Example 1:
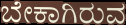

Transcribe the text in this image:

ಬೇಕಾಗಿರುವ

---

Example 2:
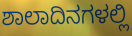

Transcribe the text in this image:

ಶಾಲಾದಿನಗಳಲ್ಲಿ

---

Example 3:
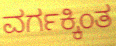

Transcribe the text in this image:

ವರ್ಗಕ್ಕಿಂತ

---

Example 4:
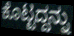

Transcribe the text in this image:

ಕೊಟ್ಟದ್ದನ್ನು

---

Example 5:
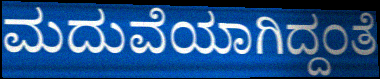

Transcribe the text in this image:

ಮದುವೆಯಾಗಿದ್ದಂತೆ